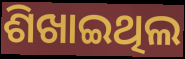
ଶିଖାଇଥିଲ